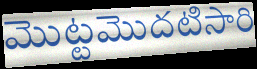
మొట్టమొదటిసారి